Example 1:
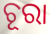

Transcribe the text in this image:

ଚୂରା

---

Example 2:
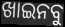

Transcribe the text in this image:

ଖାଇନବୁ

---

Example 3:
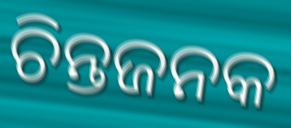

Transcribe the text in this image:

ଚିନ୍ତଜନକ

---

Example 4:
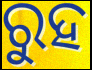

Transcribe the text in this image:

ରୁହ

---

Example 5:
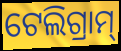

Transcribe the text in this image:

ଟେଲିଗ୍ରାମ୍